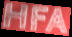
HFA